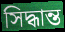
সিদ্ধান্ত